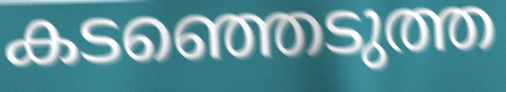
കടഞ്ഞെടുത്ത